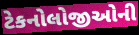
ટેકનોલોજીઓની